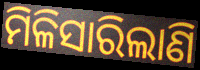
ମିଳିସାରିଲାଣି